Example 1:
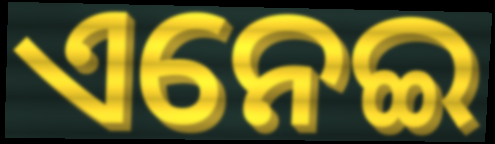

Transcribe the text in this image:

ଏନେଇ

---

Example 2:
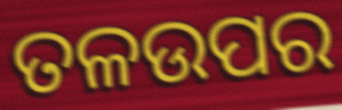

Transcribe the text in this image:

ତଳଉପର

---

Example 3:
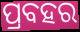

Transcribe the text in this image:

ପ୍ରବହର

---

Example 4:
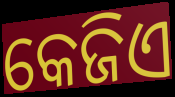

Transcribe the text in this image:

କେଜିଏ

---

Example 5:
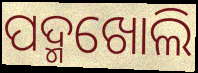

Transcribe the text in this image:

ପଦ୍ମଖୋଲି